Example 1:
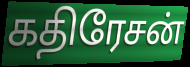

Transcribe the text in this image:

கதிரேசன்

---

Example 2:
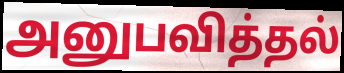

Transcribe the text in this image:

அனுபவித்தல்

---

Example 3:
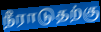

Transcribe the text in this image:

நீராடுதற்கு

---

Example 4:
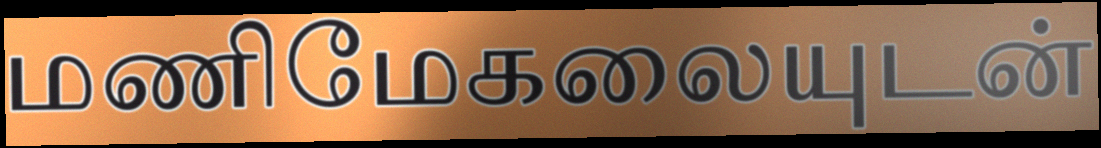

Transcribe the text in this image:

மணிமேகலையுடன்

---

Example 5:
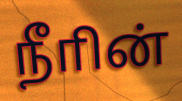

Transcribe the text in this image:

நீரின்